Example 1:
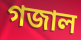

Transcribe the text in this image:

গজাল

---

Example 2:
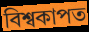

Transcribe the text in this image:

বিশ্বকাপত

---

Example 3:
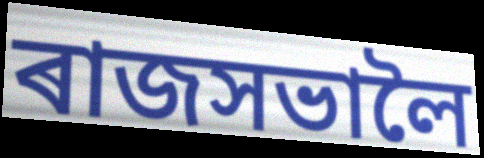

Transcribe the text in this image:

ৰাজসভালৈ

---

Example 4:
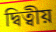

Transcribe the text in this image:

দ্বিত্বীয়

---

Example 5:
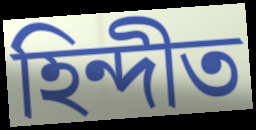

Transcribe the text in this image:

হিন্দীত